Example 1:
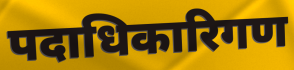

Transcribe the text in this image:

पदाधिकारिगण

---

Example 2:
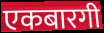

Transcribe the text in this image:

एकबारगी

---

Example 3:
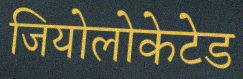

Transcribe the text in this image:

जियोलोकेटेड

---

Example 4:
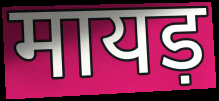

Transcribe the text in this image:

मायड़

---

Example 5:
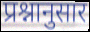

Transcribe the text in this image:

प्रश्नानुसार